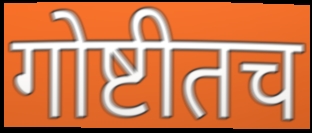
गोष्टीतच